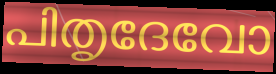
പിതൃദേവോ